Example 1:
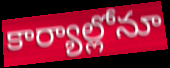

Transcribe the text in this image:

కార్యాల్లోనూ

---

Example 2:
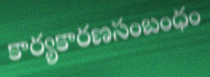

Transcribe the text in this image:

కార్యకారణసంబంధం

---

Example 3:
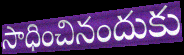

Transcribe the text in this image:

సాధించినందుకు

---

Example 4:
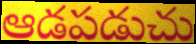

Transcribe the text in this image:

ఆడపడుచు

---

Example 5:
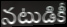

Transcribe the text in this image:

నటుడికీ